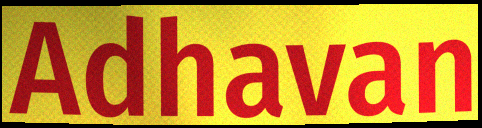
Adhavan